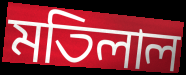
মতিলাল